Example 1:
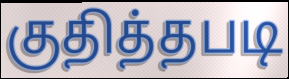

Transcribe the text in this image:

குதித்தபடி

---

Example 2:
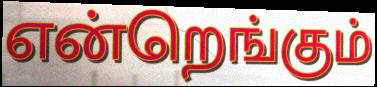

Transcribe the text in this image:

என்றெங்கும்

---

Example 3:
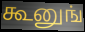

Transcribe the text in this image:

கூனுங்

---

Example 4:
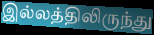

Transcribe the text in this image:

இல்லத்திலிருந்து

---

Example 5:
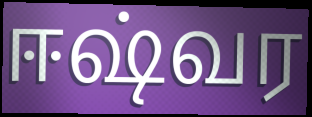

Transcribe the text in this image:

ஈஷ்வர